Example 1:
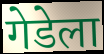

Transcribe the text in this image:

गेडेला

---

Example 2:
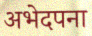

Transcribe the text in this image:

अभेदपना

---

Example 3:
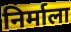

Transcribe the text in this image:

निर्माला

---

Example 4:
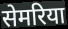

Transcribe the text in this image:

सेमरिया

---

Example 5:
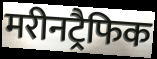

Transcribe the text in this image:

मरीनट्रैफिक